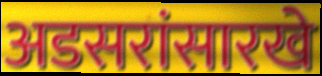
अडसरांसारखे